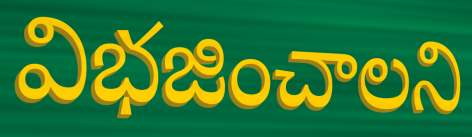
విభజించాలని